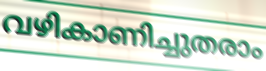
വഴികാണിച്ചുതരാം